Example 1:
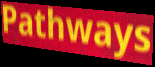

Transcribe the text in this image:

Pathways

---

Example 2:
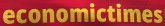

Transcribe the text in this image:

economictimes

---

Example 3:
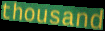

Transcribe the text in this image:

thousand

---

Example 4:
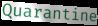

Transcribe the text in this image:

Quarantine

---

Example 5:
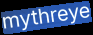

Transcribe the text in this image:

mythreye